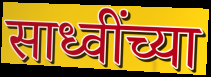
साध्वींच्या